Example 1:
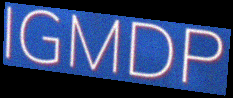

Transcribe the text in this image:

IGMDP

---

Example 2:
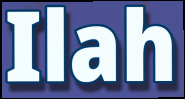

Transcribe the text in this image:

Ilah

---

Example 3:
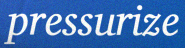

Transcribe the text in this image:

pressurize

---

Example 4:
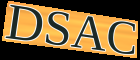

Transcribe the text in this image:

DSAC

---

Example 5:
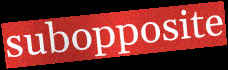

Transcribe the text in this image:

subopposite